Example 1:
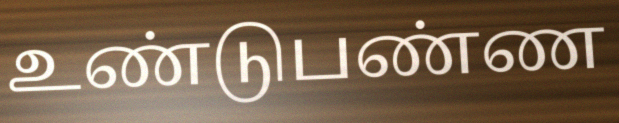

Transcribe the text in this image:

உண்டுபண்ண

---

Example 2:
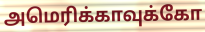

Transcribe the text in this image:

அமெரிக்காவுக்கோ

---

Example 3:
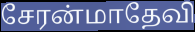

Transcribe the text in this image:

சேரன்மாதேவி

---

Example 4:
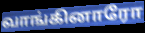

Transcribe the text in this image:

வாங்கினாரோ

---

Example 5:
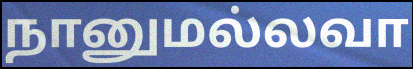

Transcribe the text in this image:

நானுமல்லவா